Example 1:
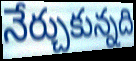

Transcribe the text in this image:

నేర్చుకున్నది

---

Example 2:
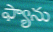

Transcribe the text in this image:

ఫ్యాను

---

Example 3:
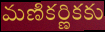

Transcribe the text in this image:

మణికర్ణికకు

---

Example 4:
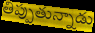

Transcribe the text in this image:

తిప్పుతున్నాడు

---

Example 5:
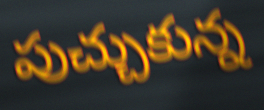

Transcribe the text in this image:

పుచ్చుకున్న